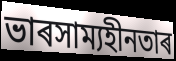
ভাৰসাম্যহীনতাৰ